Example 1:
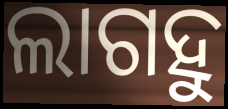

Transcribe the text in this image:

ଲାଗହୁ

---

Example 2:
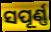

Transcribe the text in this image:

ସପୂର୍ଣ୍ଣ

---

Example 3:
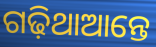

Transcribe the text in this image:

ଗଢ଼ିଥାଆନ୍ତେ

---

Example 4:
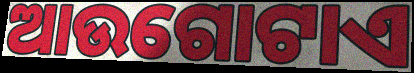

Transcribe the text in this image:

ଆଉଗୋଟାଏ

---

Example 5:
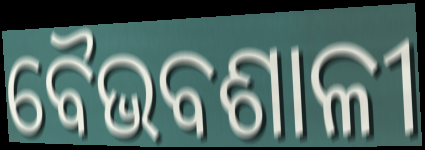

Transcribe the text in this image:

ବୈଭବଶାଳୀ